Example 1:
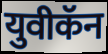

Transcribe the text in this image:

युवीकॅन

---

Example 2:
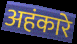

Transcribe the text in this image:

अहंकारे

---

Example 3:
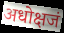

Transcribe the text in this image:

अधोक्षजं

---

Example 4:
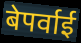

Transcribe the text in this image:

बेपर्वाई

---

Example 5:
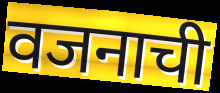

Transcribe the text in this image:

वजनाची